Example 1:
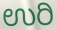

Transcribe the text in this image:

ಉರಿ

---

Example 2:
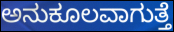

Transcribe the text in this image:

ಅನುಕೂಲವಾಗುತ್ತೆ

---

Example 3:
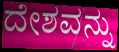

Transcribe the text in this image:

ದೇಶವನ್ನು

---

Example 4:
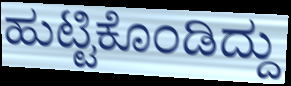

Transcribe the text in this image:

ಹುಟ್ಟಿಕೊಂಡಿದ್ದು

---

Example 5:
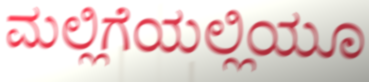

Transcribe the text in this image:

ಮಲ್ಲಿಗೆಯಲ್ಲಿಯೂ